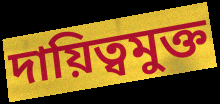
দায়িত্বমুক্ত